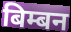
बिम्बन